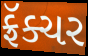
ફ્રૅક્ચર